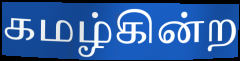
கமழ்கின்ற